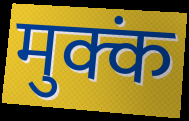
मुक्कं